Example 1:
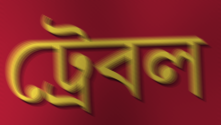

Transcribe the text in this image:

ট্রেবল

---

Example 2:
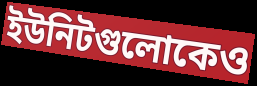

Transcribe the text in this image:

ইউনিটগুলোকেও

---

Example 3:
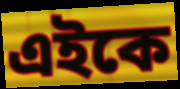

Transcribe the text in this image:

এইকে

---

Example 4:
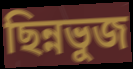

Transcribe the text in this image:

ছিন্নভুজ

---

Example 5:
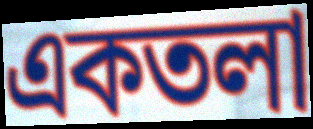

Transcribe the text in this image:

একতলা